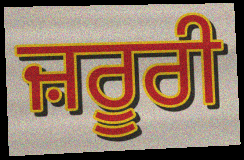
ਜ਼ਰੂਰੀ